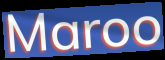
Maroo